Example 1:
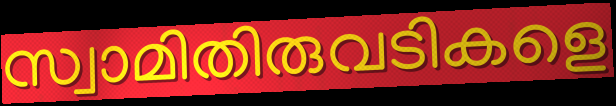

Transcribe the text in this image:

സ്വാമിതിരുവടികളെ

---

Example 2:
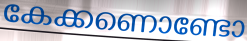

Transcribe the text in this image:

കേക്കണൊണ്ടോ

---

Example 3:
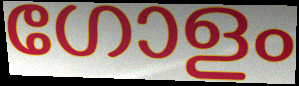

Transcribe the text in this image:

ഗോളം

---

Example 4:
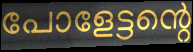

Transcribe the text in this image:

പോളേട്ടന്റെ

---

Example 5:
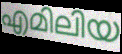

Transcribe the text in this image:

എമിലിയ